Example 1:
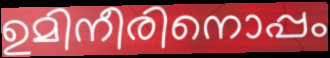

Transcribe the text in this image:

ഉമിനീരിനൊപ്പം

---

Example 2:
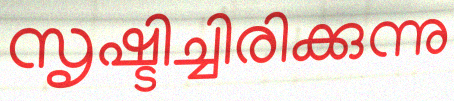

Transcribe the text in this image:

സൃഷ്ടിച്ചിരിക്കുന്നു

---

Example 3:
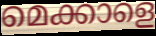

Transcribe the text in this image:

മെക്കാളെ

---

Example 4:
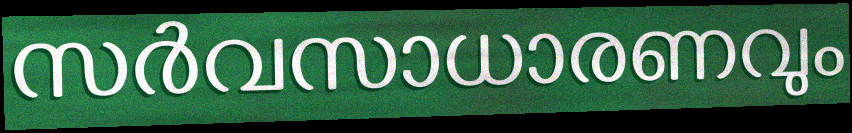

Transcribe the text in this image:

സർവസാധാരണവും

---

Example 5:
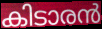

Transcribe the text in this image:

കിടാരൻ